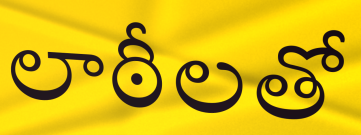
లాఠీలతో